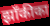
झाँकीका